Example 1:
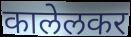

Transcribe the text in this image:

कालेलकर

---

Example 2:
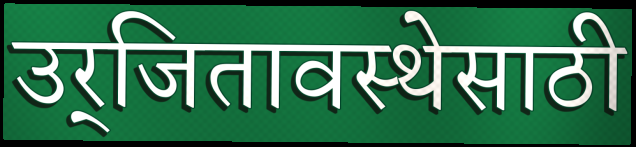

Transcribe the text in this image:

उर्जितावस्थेसाठी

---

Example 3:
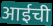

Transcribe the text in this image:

आईची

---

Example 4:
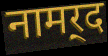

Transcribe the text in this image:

नामर्द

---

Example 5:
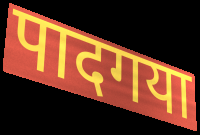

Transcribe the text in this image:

पादगया